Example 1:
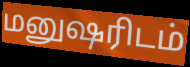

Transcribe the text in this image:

மனுஷரிடம்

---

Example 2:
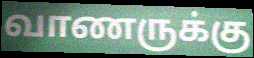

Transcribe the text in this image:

வாணருக்கு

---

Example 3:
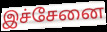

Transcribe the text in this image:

இச்சேனை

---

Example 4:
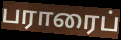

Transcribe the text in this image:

பராரைப்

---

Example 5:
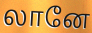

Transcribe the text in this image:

லானே